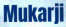
Mukarji